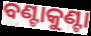
ବଣ୍ଟାକୁଣ୍ଟା